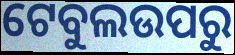
ଟେବୁଲଉପରୁ